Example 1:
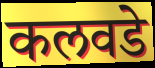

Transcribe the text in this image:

कलवडे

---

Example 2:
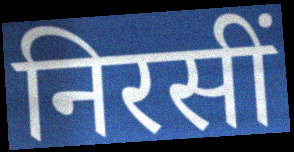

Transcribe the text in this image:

निरसीं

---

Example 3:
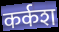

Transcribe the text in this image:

कर्कश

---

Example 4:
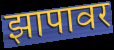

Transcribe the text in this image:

झापावर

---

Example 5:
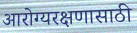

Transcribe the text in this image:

आरोग्यरक्षणासाठी